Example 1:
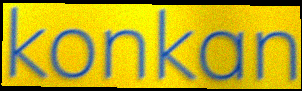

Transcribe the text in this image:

konkan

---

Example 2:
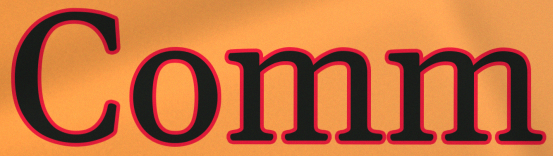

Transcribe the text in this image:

Comm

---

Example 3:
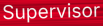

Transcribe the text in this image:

Supervisor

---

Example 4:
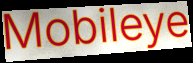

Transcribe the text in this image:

Mobileye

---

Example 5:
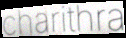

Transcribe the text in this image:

charithra